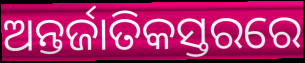
ଅନ୍ତର୍ଜାତିକସ୍ତରରେ